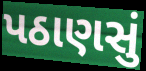
પઠાણસું